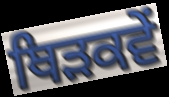
ਥਿੜਕਵੇਂ